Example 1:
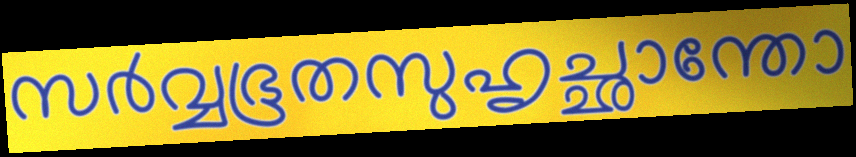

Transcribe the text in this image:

സർവ്വഭൂതസുഹൃച്ഛാന്തോ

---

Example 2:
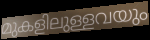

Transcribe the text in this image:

മുകളിലുള്ളവയും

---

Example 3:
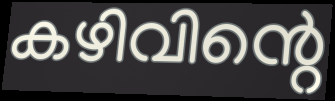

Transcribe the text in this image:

കഴിവിന്റെ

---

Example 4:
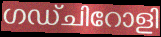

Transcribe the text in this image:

ഗഡ്ചിറോളി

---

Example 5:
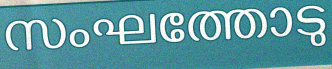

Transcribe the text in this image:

സംഘത്തോടു